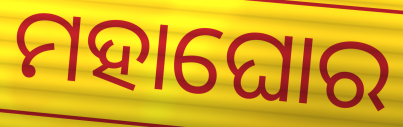
ମହାଘୋର